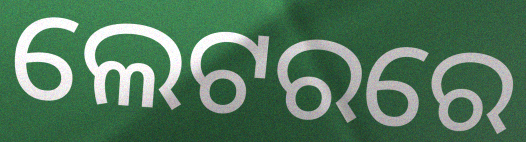
ଲେଟରରେ